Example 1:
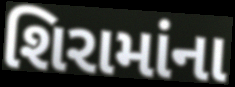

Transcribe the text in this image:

શિરામાંના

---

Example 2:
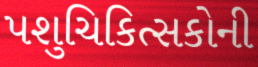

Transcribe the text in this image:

પશુચિકિત્સકોની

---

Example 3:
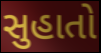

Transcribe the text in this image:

સુહાતો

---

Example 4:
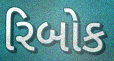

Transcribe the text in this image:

રિબોક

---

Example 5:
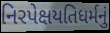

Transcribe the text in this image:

નિરપેક્ષયતિધર્મનું